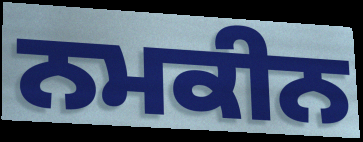
ਨਮਕੀਨ